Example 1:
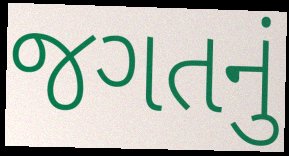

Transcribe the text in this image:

જગતનું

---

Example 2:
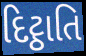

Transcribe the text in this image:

દિટ્ઠાતિ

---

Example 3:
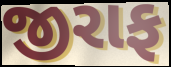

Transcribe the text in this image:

જીરાફ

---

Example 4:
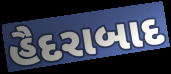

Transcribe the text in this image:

હૈદરાબાદ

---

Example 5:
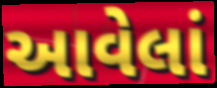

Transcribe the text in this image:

આવેલાં